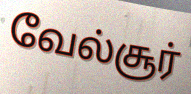
வேல்சூர்